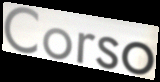
Corso